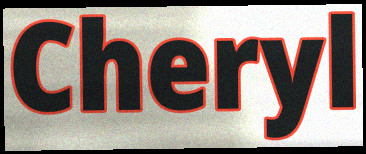
Cheryl